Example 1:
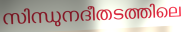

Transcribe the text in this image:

സിന്ധുനദീതടത്തിലെ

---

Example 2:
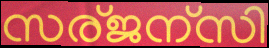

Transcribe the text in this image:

സര്ജന്സി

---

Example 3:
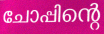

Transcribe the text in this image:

ചോപ്പിന്റെ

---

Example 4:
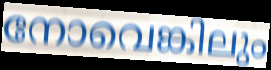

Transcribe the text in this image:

നോവെങ്കിലും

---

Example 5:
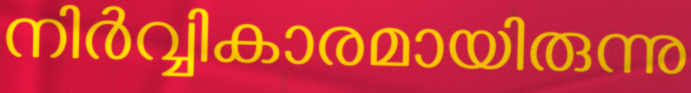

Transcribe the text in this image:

നിർവ്വികാരമായിരുന്നു